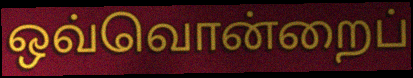
ஒவ்வொன்றைப்